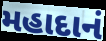
મહાદાનં